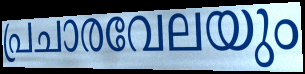
പ്രചാരവേലയും